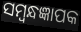
ସମ୍ବନ୍ଧଜ୍ଞାପକ